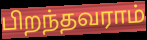
பிறந்தவராம்